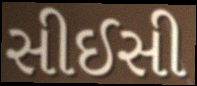
સીઈસી